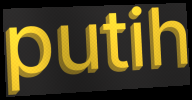
putih